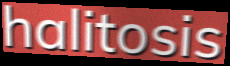
halitosis